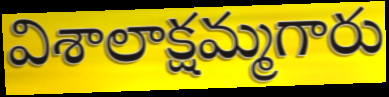
విశాలాక్షమ్మగారు